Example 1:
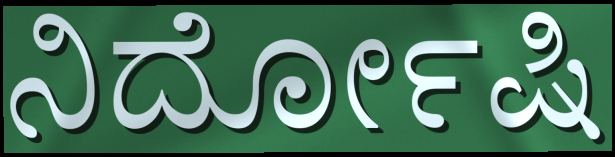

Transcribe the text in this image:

ನಿರ್ದೋಷಿ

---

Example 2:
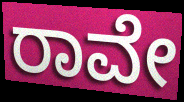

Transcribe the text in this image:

ರಾವೇ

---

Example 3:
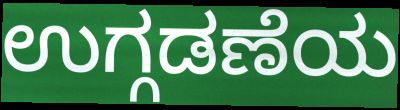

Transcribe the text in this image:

ಉಗ್ಗಡಣೆಯ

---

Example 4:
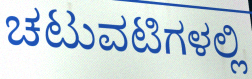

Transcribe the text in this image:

ಚಟುವಟಿಗಳಲ್ಲಿ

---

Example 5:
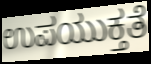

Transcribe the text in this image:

ಉಪಯುಕ್ತತೆ